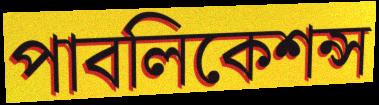
পাবলিকেশন্স